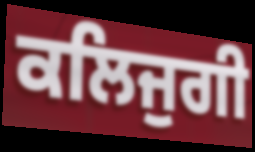
ਕਲਿਜੁਗੀ